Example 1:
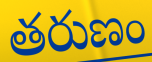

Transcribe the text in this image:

తరుణం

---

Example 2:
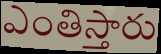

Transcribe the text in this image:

ఎంతిస్తారు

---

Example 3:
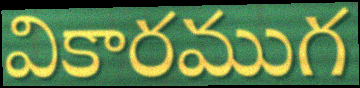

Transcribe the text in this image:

వికారముగ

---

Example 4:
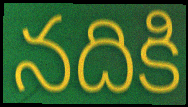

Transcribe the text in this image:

నదికి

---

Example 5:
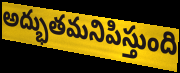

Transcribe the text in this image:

అద్భుతమనిపిస్తుంది